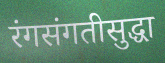
रंगसंगतीसुद्धा